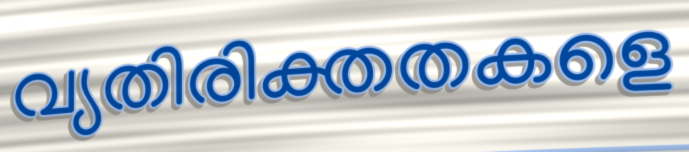
വ്യതിരിക്തതകളെ